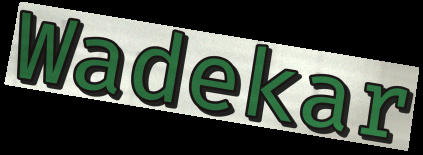
Wadekar